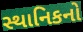
સ્થાનિકનો